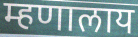
म्हणालाय